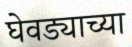
घेवड्याच्या